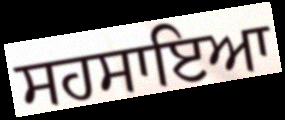
ਸਹਸਾਇਆ